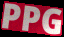
PPG